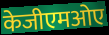
केजीएमओए